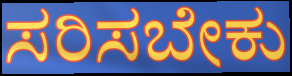
ಸರಿಸಬೇಕು